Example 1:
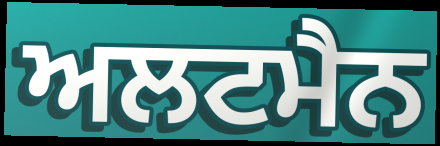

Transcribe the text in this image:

ਅਲਟਮੈਨ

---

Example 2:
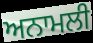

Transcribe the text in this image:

ਅਨਾਮਲੀ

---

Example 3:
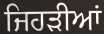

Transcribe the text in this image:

ਜਿਹੜੀਆਂ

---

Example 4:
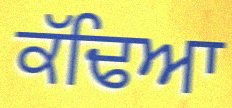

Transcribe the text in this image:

ਕੱਢਿਆ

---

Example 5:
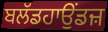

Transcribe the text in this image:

ਬਲੱਡਹਾਉਂਡਜ਼